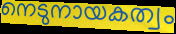
നെടുനായകത്വം